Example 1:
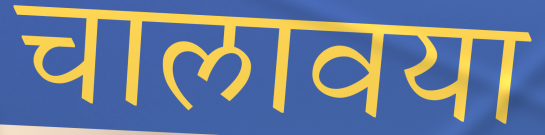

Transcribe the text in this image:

चालावया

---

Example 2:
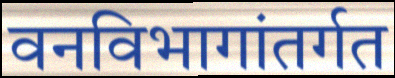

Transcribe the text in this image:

वनविभागांतर्गत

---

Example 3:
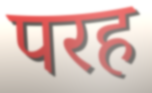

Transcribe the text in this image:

परह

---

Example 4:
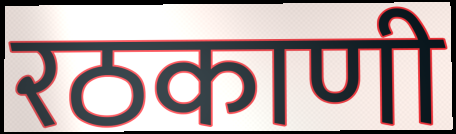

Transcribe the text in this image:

रठकाणी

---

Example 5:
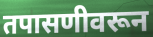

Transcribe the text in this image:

तपासणीवरून